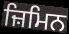
ਜ਼ਿਮਿਨ